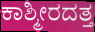
ಕಾಶ್ಮೀರದತ್ತ